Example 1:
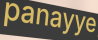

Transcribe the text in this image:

panayye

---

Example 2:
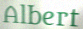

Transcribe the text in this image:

Albert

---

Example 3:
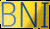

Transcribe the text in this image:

BNI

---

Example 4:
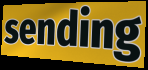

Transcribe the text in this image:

sending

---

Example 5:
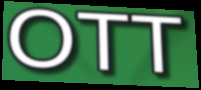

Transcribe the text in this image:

OTT